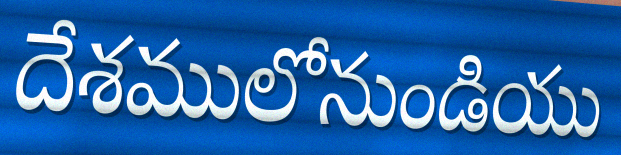
దేశములోనుండియు